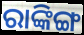
ରାଙ୍କିଙ୍ଗ